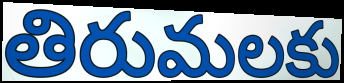
తిరుమలకు